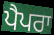
ਪੈਪਰਾ